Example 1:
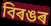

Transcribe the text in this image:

বিৰঙৰ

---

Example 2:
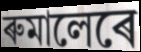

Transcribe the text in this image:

ৰুমালেৰে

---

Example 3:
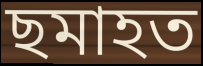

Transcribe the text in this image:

ছমাহত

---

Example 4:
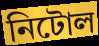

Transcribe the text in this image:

নিটোল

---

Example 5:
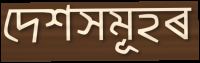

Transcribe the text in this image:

দেশসমূহৰ